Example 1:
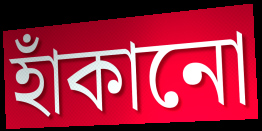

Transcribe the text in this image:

হাঁকানো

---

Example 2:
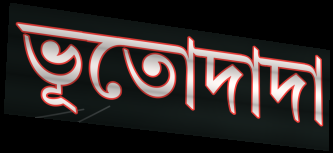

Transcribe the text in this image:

ভূতোদাদা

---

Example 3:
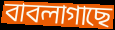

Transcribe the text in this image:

বাবলাগাছে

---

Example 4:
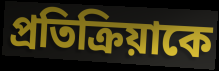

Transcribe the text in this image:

প্রতিক্রিয়াকে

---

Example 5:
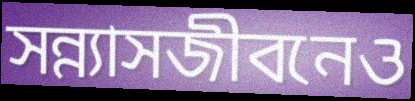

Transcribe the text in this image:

সন্ন্যাসজীবনেও